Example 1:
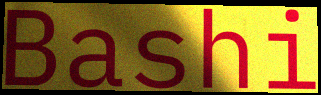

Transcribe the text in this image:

Bashi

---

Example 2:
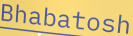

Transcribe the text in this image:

Bhabatosh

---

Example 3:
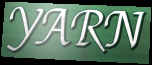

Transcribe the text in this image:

YARN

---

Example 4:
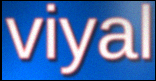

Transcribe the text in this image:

viyal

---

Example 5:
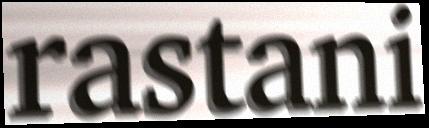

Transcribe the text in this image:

rastani